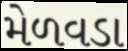
મેળવડા